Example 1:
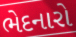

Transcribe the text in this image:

ભેદનારો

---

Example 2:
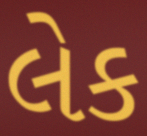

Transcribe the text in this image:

લેક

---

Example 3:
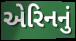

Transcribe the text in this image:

એરિનનું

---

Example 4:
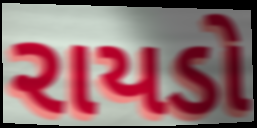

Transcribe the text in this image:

રાયડો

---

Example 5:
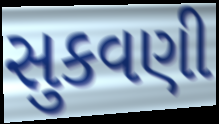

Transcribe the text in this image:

સુકવણી